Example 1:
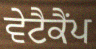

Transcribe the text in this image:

ਵੇਟੈਕੈਂਪ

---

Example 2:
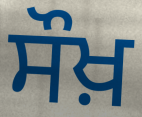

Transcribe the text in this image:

ਸੌਖ਼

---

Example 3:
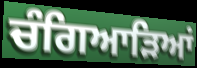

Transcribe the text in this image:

ਚੰਗਿਆੜਿਆਂ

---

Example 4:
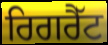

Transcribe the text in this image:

ਰਿਗਰੈੱਟ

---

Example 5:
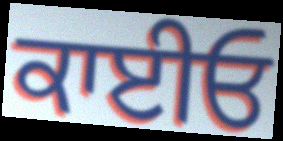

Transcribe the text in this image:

ਕਾਈਓ